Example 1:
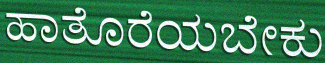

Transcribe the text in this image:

ಹಾತೊರೆಯಬೇಕು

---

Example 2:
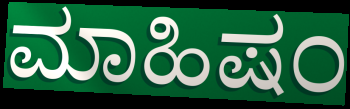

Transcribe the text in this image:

ಮಾಹಿಷಂ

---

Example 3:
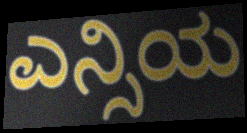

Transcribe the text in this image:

ಎನ್ಸಿಯ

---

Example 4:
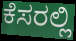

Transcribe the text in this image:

ಕೆಸರಲ್ಲಿ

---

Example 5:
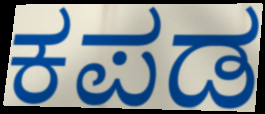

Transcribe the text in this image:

ಕಪಡ